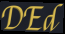
DEd